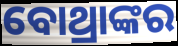
ବୋଥ୍ରାଙ୍କର